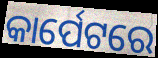
କାର୍ପେଟରେ